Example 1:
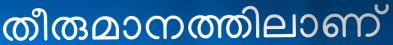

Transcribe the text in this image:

തീരുമാനത്തിലാണ്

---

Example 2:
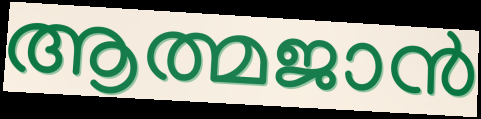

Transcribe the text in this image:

ആത്മജാൻ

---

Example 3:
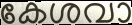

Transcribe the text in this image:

കേശവാ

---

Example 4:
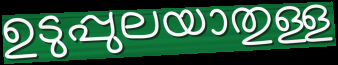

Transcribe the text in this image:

ഉടുപ്പുലയാതുള്ള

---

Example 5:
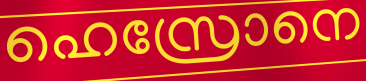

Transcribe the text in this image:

ഹെസ്രോനെ